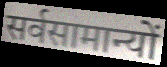
सर्वसामान्यों